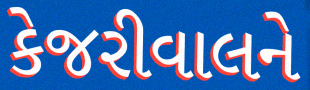
કેજરીવાલને